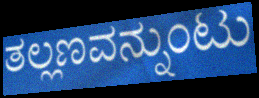
ತಲ್ಲಣವನ್ನುಂಟು